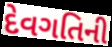
દેવગતિની